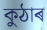
কুঠাৰ